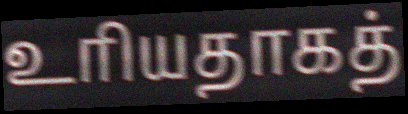
உரியதாகத்